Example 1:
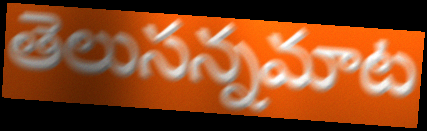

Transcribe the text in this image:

తెలుసన్నమాట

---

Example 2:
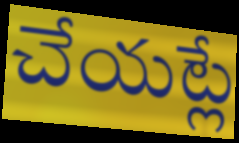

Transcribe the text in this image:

చేయట్లే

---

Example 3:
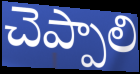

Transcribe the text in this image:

చెప్పాలి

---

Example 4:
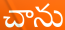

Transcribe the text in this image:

చాను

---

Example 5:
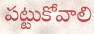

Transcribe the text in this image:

పట్టుకోవాలి